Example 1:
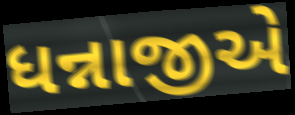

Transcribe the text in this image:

ધન્નાજીએ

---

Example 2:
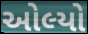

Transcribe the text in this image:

ઓલ્યો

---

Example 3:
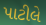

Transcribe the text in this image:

પાટીલે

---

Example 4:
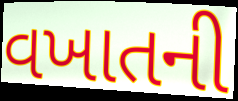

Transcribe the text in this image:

વખાતની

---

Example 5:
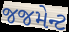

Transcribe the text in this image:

જજમેન્ટ